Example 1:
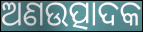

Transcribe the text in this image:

ଅଣଉତ୍ପାଦକ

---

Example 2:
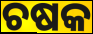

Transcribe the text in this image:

ଚଷକ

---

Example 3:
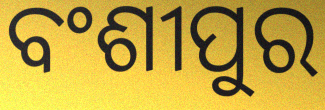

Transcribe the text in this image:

ବଂଶୀପୁର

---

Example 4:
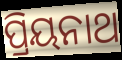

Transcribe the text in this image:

ପ୍ରିୟନାଥ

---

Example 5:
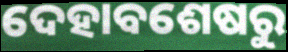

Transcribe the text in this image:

ଦେହାବଶେଷରୁ